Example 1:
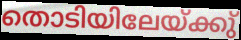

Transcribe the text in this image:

തൊടിയിലേയ്ക്കു്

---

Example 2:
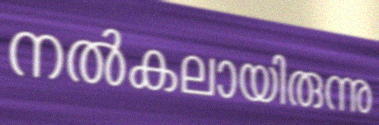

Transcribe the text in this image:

നൽകലായിരുന്നു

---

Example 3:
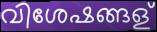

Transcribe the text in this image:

വിശേഷങ്ങള്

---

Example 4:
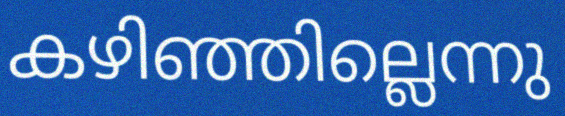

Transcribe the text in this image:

കഴിഞ്ഞില്ലെന്നു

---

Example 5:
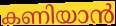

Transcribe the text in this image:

കണിയാൻ